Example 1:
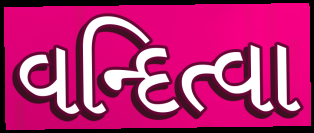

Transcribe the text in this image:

વન્દિત્વા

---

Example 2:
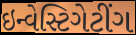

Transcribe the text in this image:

ઇન્વેસ્ટિગેટીંગ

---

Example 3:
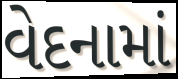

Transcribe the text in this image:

વેદનામાં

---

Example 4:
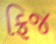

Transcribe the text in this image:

ફ્રિજ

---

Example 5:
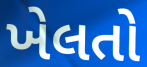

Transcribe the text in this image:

ખેલતો